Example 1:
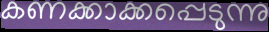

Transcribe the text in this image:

കണക്കാക്കപ്പെടുന്നു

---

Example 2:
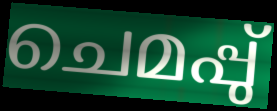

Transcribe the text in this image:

ചെമപ്പു്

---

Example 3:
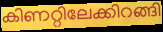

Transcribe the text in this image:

കിണറ്റിലേക്കിറങ്ങി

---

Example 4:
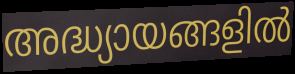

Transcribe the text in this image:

അദ്ധ്യായങ്ങളിൽ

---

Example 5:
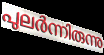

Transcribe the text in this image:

പുലർന്നിരുന്നു